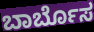
ಬಾರ್ಬೊಸ